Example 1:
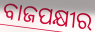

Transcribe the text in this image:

ବାଜପକ୍ଷୀର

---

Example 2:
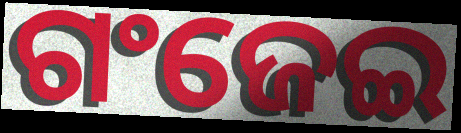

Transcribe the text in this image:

ଗଂଜେଇ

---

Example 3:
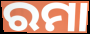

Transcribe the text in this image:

ରମା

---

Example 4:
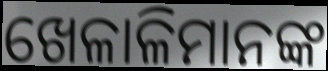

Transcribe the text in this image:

ଖେଳାଳିମାନଙ୍କ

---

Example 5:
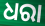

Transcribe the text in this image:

ଧରା